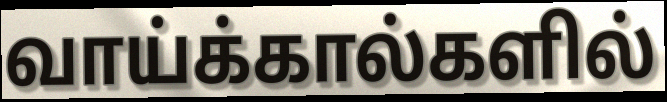
வாய்க்கால்களில்